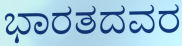
ಭಾರತದವರ